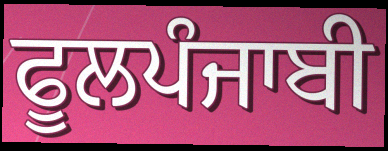
ਫੂਲਪੰਜਾਬੀ